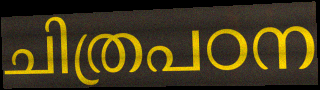
ചിത്രപഠന